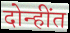
दोन्हींत